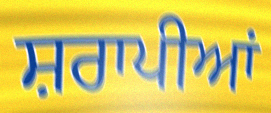
ਸ਼ਰਾਪੀਆਂ